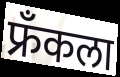
फ्रॅंकला